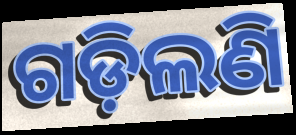
ଗଡ଼ିଲଣି